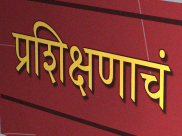
प्रशिक्षणाचं